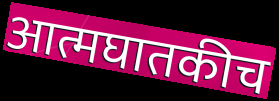
आत्मघातकीच